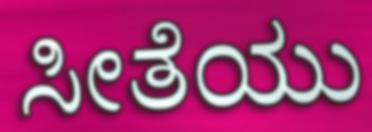
ಸೀತೆಯು